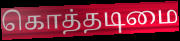
கொத்தடிமை